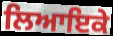
ਲਿਆਇਕੇ